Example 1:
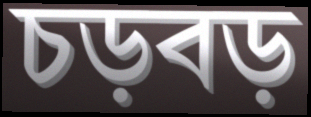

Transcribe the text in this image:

চড়বড়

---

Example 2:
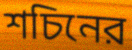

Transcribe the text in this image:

শচিনের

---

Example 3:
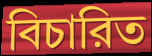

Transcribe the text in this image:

বিচারিত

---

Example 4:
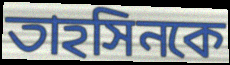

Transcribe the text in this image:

তাহসিনকে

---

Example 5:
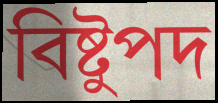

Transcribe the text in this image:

বিষ্টুপদ